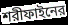
শরীফাইনের